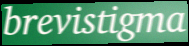
brevistigma